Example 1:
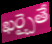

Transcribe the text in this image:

ఖర్చైతే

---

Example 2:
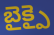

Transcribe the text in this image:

బైక్పై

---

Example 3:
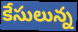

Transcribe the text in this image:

కేసులున్న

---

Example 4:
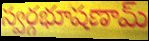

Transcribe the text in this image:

స్వర్గభూషణామ్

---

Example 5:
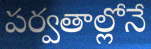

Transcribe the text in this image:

పర్వతాల్లోనే